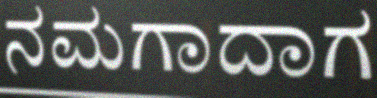
ನಮಗಾದಾಗ